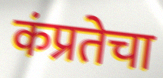
कंप्रतेचा